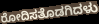
ರೋದಿಸತೊಡಗಿದಳು